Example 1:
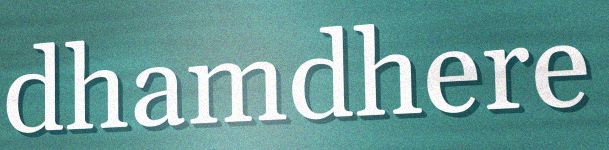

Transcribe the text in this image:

dhamdhere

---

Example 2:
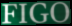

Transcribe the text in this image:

FIGO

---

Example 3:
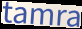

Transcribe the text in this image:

tamra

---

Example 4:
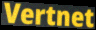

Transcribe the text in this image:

Vertnet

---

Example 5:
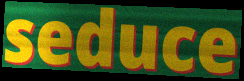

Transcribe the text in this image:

seduce